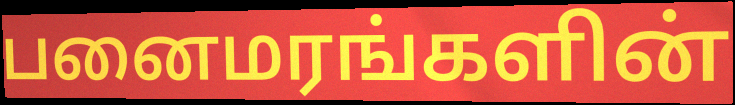
பனைமரங்களின்